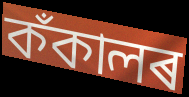
কঁকালৰ